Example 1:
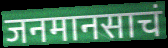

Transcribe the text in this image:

जनमानसाचं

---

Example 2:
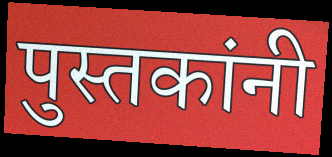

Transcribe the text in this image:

पुस्तकांनी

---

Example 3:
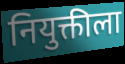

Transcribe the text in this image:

नियुक्तीला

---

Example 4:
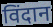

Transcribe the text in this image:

विंदान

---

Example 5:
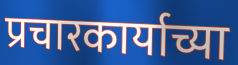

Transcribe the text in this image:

प्रचारकार्याच्या